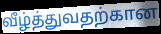
வீழ்த்துவதற்கான